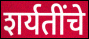
शर्यतींचे